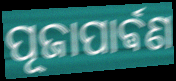
ପୂଜାପାର୍ଵଣ